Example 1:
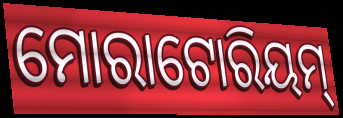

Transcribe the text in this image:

ମୋରାଟୋରିୟମ୍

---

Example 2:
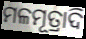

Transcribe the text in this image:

ମଳମୂତ୍ରାଦି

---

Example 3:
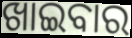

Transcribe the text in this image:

ଖାଇବାର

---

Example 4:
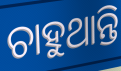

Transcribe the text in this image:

ଚାହୁଥାନ୍ତି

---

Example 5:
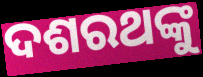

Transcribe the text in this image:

ଦଶରଥଙ୍କୁ